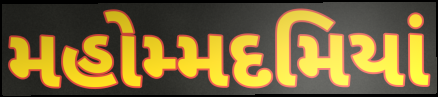
મહોમ્મદમિયાં